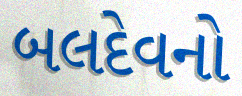
બલદેવનો